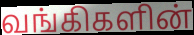
வங்கிகளின்